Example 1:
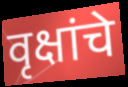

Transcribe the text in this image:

वृक्षांचे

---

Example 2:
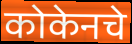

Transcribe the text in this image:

कोकेनचे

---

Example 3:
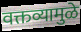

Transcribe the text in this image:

वक्तव्यामुळे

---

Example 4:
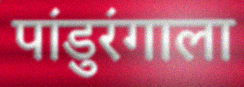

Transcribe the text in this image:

पांडुरंगाला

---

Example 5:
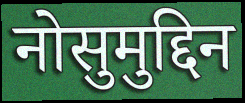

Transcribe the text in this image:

नोसुमुद्दिन